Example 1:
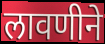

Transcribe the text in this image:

लावणीने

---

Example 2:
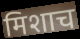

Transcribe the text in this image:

मिशाच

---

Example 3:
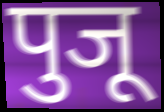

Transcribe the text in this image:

पुजू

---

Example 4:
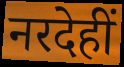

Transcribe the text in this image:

नरदेहीं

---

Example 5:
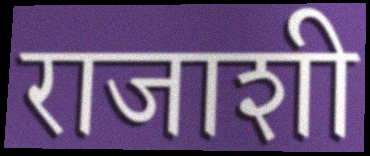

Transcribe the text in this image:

राजाशी